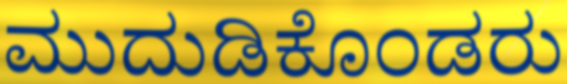
ಮುದುಡಿಕೊಂಡರು